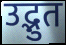
उद्भुत